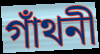
গাঁথনী